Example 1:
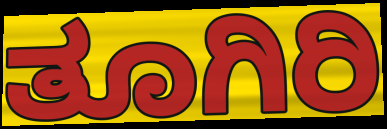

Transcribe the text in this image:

ತೂಗಿರಿ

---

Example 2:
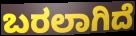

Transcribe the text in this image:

ಬರಲಾಗಿದೆ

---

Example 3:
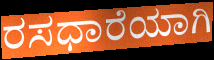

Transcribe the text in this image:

ರಸಧಾರೆಯಾಗಿ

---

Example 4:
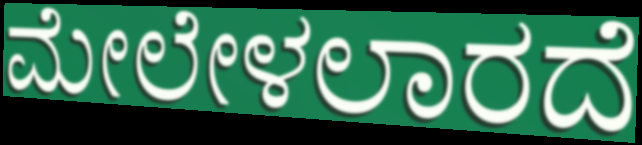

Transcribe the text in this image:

ಮೇಲೇಳಲಾರದೆ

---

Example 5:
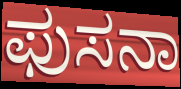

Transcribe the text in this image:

ಫುಸನಾ